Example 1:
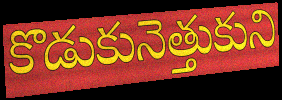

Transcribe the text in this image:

కొడుకునెత్తుకుని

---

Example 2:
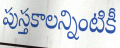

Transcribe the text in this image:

పుస్తకాలన్నింటికీ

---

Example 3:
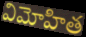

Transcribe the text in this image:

విమోహిత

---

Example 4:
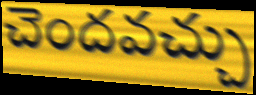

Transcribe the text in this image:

చెందవచ్చు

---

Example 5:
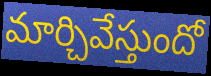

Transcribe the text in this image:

మార్చివేస్తుందో